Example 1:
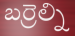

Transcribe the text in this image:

బర్రెల్ని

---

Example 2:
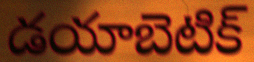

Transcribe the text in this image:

డయాబెటిక్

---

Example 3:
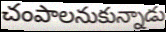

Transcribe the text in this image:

చంపాలనుకున్నాడు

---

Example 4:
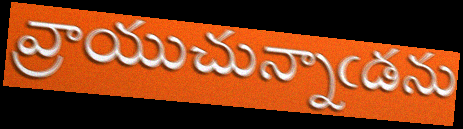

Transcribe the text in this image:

వ్రాయుచున్నాఁడను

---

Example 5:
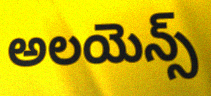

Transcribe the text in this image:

అలయెన్స్